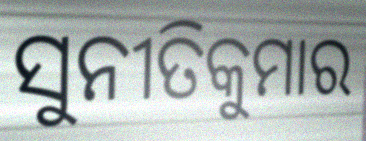
ସୁନୀତିକୁମାର